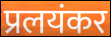
प्रलयंकर